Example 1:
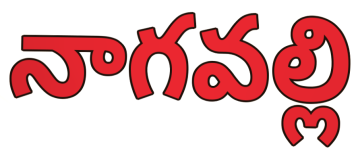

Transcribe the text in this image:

నాగవల్లి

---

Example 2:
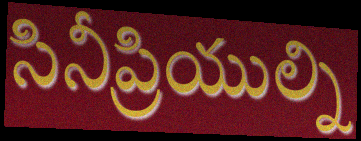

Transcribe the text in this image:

సినీప్రియుల్ని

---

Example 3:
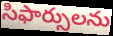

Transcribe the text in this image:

సిఫార్సులను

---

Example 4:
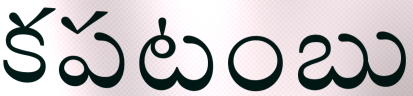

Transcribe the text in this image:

కపటంబు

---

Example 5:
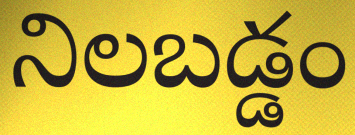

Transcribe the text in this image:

నిలబడ్డం